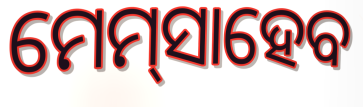
ମେମ୍‌ସାହେବ